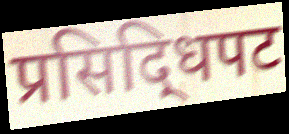
प्रसिद्धिपट